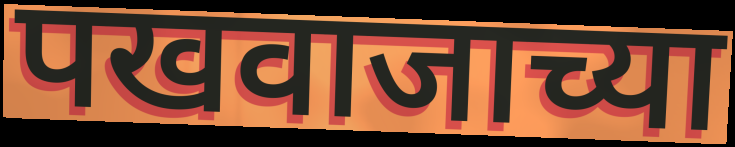
पखवाजाच्या